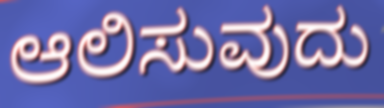
ಆಲಿಸುವುದು